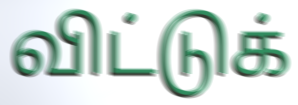
விட்டுக்